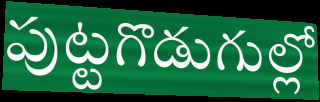
పుట్టగొడుగుల్లో